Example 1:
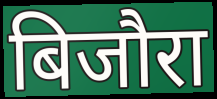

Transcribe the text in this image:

बिजौरा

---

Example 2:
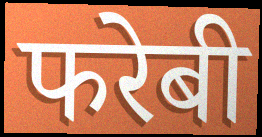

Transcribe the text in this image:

फरेबी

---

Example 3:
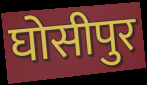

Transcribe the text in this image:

घोसीपुर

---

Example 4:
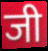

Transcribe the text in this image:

जी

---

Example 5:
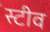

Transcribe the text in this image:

स्‍टीव